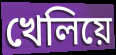
খেলিয়ে